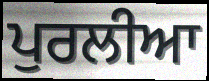
ਪੁਰਲੀਆ